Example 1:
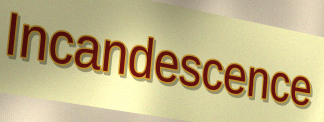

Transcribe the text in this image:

Incandescence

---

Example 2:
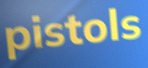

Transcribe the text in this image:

pistols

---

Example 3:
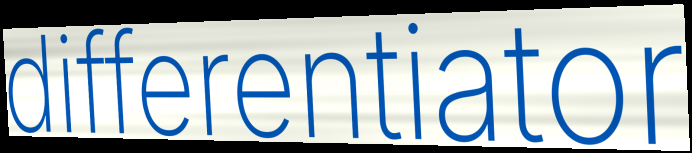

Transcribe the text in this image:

differentiator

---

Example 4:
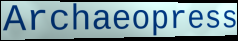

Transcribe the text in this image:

Archaeopress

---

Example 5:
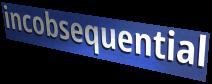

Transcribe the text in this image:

incobsequential